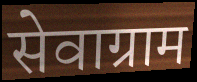
सेवाग्राम